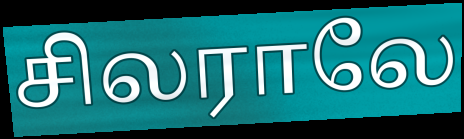
சிலராலே